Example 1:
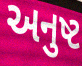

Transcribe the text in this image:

અનુષ્ટ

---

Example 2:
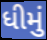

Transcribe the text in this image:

ધીમું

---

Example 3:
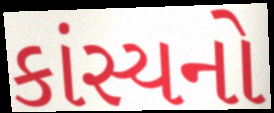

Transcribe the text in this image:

કાંસ્યનો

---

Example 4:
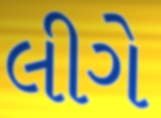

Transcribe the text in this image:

લીગે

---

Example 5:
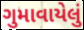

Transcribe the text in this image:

ગુમાવાયેલું